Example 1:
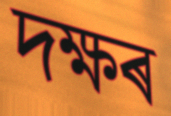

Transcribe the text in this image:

দক্ষৰ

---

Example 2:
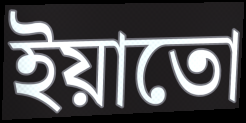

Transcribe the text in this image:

ইয়াতো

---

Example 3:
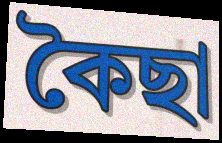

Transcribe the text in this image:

কৈছা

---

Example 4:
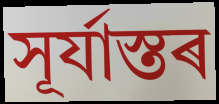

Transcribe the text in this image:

সূৰ্যাস্তৰ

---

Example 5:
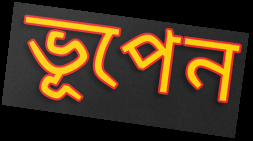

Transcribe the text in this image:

ভূপেন